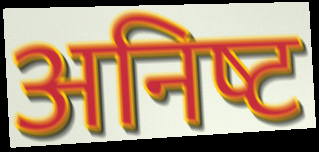
अनिष्‍ट